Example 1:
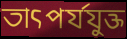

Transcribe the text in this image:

তাৎপর্যযুক্ত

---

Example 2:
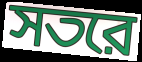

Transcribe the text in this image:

সতরে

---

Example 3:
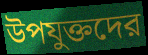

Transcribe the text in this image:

উপযুক্তদের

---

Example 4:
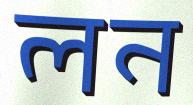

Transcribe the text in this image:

লন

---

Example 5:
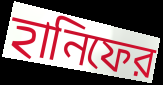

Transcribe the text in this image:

হানিফের